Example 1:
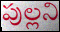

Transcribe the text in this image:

పుల్లని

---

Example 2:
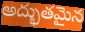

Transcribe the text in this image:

అద్భుతమైన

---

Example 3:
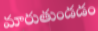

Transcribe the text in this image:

మారుతుండడం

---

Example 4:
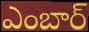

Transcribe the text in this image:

ఎంబార్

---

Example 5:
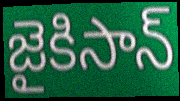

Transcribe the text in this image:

జైకిసాన్